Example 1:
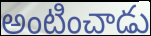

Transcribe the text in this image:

అంటించాడు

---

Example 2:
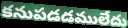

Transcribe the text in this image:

కనుపడడములేదు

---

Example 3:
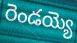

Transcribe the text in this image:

రెండయ్యె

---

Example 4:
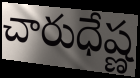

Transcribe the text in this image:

చారుధేష్ణ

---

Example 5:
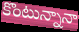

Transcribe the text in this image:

కొంటున్నానా